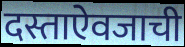
दस्ताऐवजाची